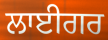
ਲਾਈਗਰ